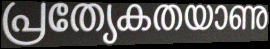
പ്രത്യേകതയാണു